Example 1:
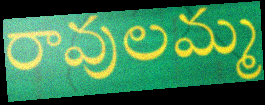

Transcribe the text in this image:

రావులమ్మ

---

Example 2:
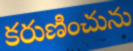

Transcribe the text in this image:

కరుణించును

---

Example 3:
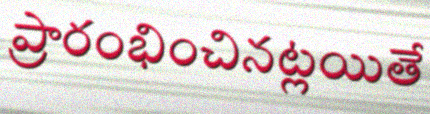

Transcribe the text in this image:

ప్రారంభించినట్లయితే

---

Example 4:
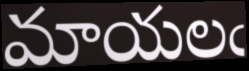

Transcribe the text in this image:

మాయలఁ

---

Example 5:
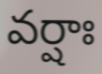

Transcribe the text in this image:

వర్షాః